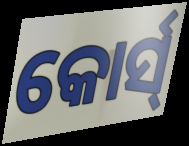
କୋର୍ସ୍